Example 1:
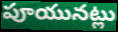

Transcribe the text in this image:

పూయునట్లు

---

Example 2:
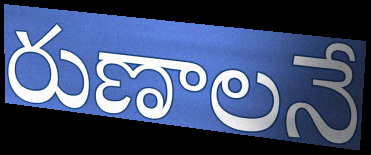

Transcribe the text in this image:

రుణాలనే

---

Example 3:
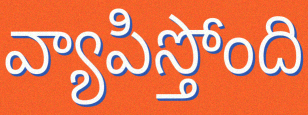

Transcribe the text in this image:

వ్యాపిస్తోంది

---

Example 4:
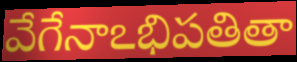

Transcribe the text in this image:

వేగేనాఽభిపతితా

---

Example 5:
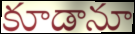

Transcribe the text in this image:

కూడానూ